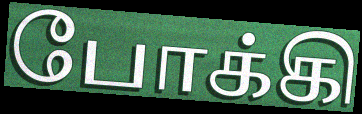
போக்கி